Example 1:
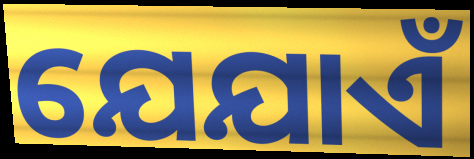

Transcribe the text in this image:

ଯେଯାଏଁ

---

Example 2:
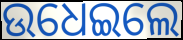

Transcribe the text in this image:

ଉଧେଇଲେ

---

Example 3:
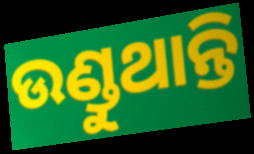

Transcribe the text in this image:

ଉଣ୍ଡୁଥାନ୍ତି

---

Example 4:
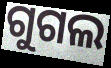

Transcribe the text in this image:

ଗୁଗଲ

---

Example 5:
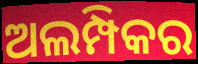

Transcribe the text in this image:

ଅଲମ୍ପିକର